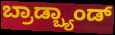
ಬ್ರಾಡ್ಬ್ಯಾಂಡ್